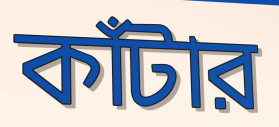
কাঁটার